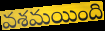
వశమయింది